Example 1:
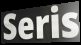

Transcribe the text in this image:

Seris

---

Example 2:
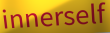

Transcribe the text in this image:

innerself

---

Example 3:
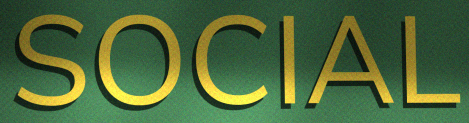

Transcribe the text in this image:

SOCIAL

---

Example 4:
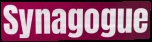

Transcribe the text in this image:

Synagogue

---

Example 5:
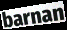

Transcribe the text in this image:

barnan